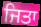
ਜਿਤਾ